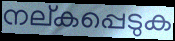
നല്കപ്പെടുക